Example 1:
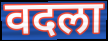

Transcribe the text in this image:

वदला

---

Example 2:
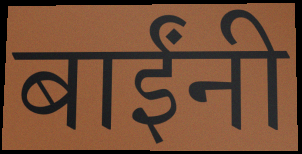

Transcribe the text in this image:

बाईंनी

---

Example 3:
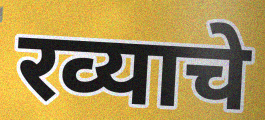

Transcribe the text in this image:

रव्याचे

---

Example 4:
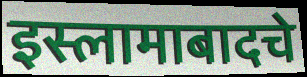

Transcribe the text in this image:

इस्लामाबादचे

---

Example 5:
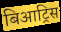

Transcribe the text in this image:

बिआट्रिस